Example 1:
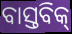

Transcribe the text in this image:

ବାସ୍ତବିକ୍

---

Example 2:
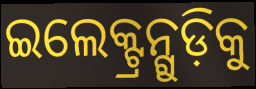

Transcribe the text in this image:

ଇଲେକ୍ଟ୍ରନ୍ଗୁଡ଼ିକୁ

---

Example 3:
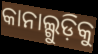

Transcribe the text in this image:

କାନାଲ୍ଗୁଡ଼ିକୁ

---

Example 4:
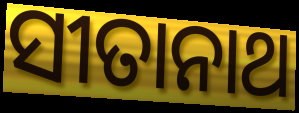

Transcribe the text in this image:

ସୀତାନାଥ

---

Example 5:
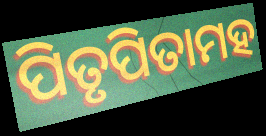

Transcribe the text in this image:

ପିତୃପିତାମହ